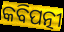
କବିପତ୍ନୀ